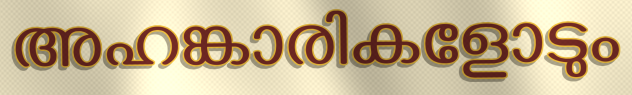
അഹങ്കാരികളോടും